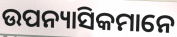
ଉପନ୍ୟାସିକମାନେ